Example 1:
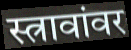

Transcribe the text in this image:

स्त्रावांवर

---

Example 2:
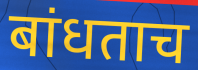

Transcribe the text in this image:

बांधताच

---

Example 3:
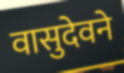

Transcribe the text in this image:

वासुदेवने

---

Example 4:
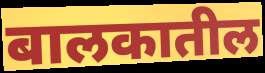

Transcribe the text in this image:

बालकातील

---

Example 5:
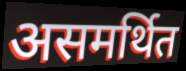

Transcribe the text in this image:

असमर्थित